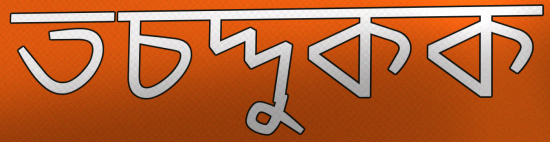
তচদ্দুকক